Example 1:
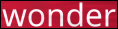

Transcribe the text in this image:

wonder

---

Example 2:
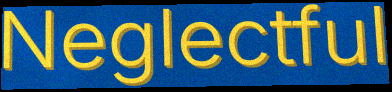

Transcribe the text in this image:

Neglectful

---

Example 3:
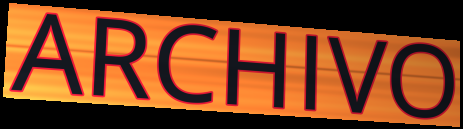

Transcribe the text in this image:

ARCHIVO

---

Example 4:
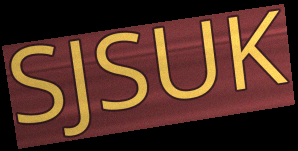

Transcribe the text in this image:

SJSUK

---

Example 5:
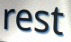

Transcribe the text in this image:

rest